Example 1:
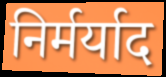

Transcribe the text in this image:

निर्मर्याद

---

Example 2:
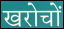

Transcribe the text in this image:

खरोचों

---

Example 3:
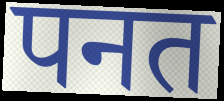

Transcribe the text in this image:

पनत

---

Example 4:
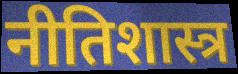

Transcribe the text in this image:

नीतिशास्त्र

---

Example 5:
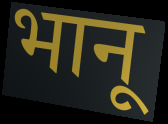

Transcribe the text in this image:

भानू